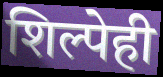
शिल्पेही